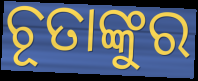
ଚୂତାଙ୍କୁର